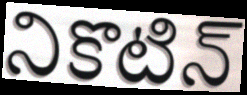
నికొటిన్